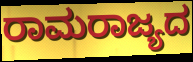
ರಾಮರಾಜ್ಯದ